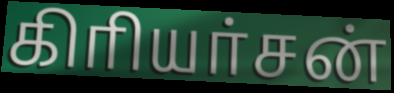
கிரியர்சன்